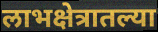
लाभक्षेत्रातल्या